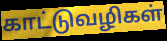
காட்டுவழிகள்